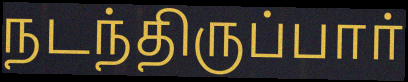
நடந்திருப்பார்